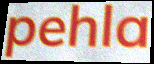
pehla